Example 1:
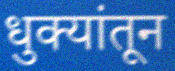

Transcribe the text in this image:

धुक्यांतून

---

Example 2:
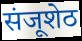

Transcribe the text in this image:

संजूशेठ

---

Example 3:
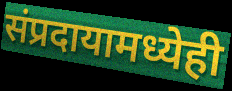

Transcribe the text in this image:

संप्रदायामध्येही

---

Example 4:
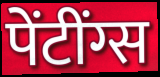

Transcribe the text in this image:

पेंटींग्स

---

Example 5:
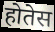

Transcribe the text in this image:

होतेस